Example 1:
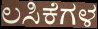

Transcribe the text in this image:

ಲಸಿಕೆಗಳ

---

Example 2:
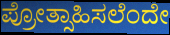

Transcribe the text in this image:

ಪ್ರೋತ್ಸಾಹಿಸಲೆಂದೇ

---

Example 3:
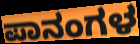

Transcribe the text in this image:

ಪಾನಂಗಳ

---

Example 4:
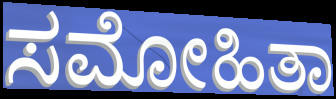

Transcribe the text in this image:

ಸಮೋಹಿತಾ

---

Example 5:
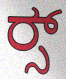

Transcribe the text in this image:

ರ್‍ಸ್